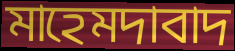
মাহেমদাবাদ